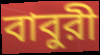
বাবুরী